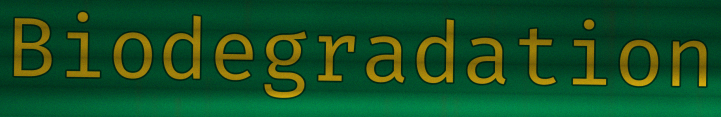
Biodegradation